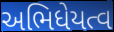
અભિધેયત્વ